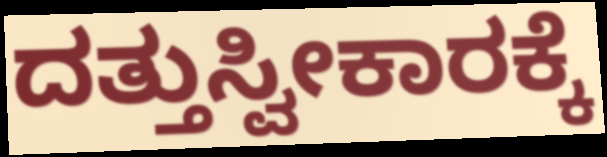
ದತ್ತುಸ್ವೀಕಾರಕ್ಕೆ